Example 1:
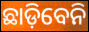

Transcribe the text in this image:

ଛାଡ଼ିବେନି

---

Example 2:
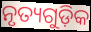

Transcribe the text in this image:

ନୃତ୍ୟଗୁଡ଼ିକ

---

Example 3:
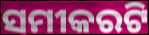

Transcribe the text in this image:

ସମୀକରଟି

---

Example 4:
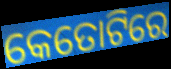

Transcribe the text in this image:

କେତୋଟିରେ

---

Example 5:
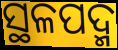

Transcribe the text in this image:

ସ୍ଥଳପଦ୍ମ